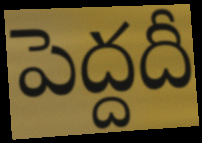
పెద్దదీ